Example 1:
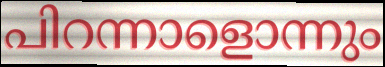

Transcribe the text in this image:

പിറന്നാളൊന്നും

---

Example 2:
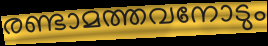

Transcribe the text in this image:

രണ്ടാമത്തവനോടും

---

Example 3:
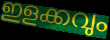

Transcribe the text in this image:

ഇളക്കവും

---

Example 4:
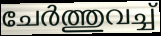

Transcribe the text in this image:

ചേർത്തുവച്ച്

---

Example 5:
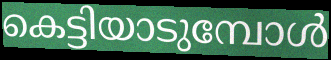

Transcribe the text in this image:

കെട്ടിയാടുമ്പോൾ